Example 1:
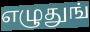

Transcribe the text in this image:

எழுதுங்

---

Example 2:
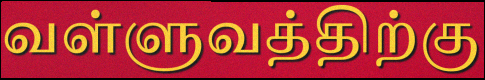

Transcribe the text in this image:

வள்ளுவத்திற்கு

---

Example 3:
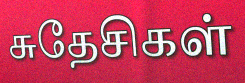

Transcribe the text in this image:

சுதேசிகள்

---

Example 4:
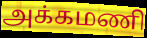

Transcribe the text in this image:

அக்கமணி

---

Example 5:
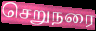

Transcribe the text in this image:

செறுநரை